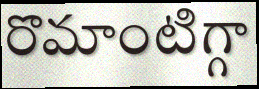
రొమాంటిగ్గా